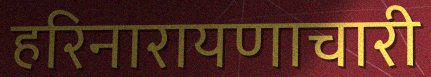
हरिनारायणाचारी